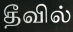
தீவில்